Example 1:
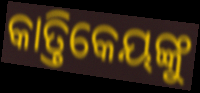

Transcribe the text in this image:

କାତ୍ତିକେୟଙ୍କୁ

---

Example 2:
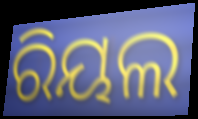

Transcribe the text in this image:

ରିୟଲ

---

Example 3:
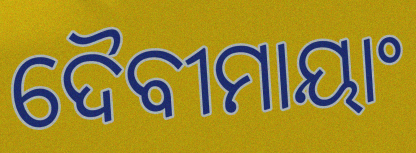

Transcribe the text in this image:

ଦୈବୀମାୟାଂ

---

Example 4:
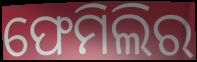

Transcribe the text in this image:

ଫେମିଲିର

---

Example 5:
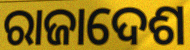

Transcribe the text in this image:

ରାଜାଦେଶ